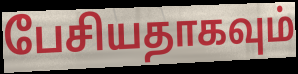
பேசியதாகவும்